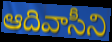
ఆదివాసీని